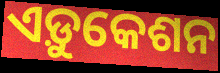
ଏଡ଼ୁକେଶନ